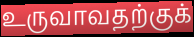
உருவாவதற்குக்